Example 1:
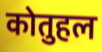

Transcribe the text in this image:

कोतुहल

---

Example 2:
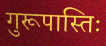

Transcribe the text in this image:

गुरूपास्तिः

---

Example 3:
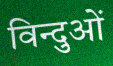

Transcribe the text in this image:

विन्दुओं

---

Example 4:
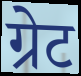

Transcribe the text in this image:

ग्रेट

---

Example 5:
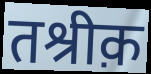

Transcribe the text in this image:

तश्रीक़